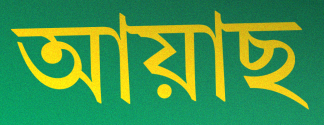
আয়াছ